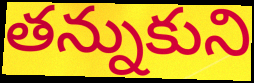
తన్నుకుని